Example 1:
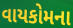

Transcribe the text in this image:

વાયકોમના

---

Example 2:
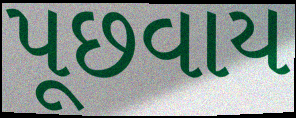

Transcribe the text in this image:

પૂછવાય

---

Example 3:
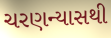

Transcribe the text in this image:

ચરણન્યાસથી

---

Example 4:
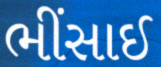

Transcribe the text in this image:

ભીંસાઈ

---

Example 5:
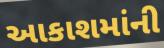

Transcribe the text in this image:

આકાશમાંની